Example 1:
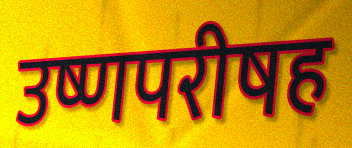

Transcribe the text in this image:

उष्णपरीषह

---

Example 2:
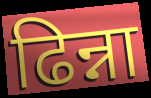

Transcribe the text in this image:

ढिन्ना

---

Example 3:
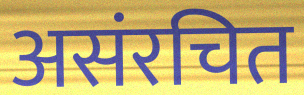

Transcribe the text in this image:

असंरचित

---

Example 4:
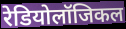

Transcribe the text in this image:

रेडियोलॉजिकल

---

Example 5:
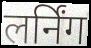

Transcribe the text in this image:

लर्निंग